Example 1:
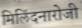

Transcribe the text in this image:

मिलिंदनारोजी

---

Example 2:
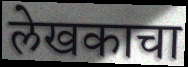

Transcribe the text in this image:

लेखकाचा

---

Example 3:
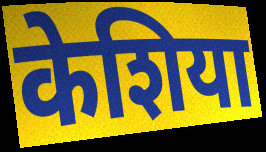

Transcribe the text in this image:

केशिया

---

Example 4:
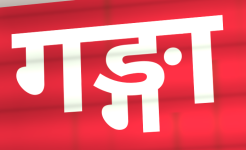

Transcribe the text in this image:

गङ्गा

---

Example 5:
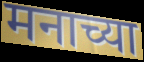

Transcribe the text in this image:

मनाच्या